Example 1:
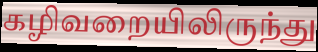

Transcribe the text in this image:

கழிவறையிலிருந்து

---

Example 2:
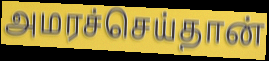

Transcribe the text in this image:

அமரச்செய்தான்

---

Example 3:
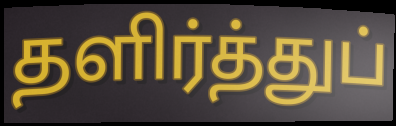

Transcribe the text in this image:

தளிர்த்துப்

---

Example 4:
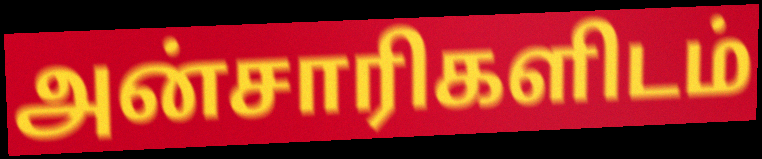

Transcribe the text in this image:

அன்சாரிகளிடம்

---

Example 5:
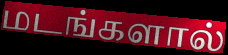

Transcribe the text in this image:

மடங்களால்